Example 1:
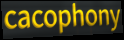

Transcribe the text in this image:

cacophony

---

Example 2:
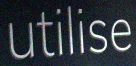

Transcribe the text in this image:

utilise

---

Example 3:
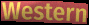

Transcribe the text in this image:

Western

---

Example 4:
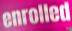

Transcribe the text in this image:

enrolled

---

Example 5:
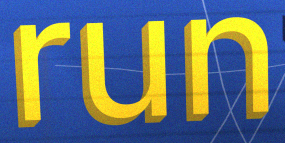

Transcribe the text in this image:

run